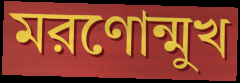
মরণোন্মুখ